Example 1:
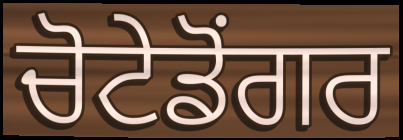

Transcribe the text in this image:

ਚੋਟੇਡੋਂਗਰ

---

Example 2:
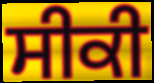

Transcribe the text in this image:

ਸੀਕੀ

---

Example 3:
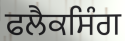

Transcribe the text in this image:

ਫਲੈਕਸਿੰਗ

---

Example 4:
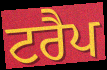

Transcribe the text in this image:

ਟਰੈਪ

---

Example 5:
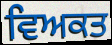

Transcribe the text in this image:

ਵਿਅਕਤ